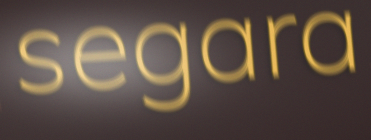
segara